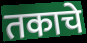
तकाचे